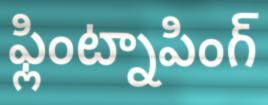
ఫ్లింట్నాపింగ్